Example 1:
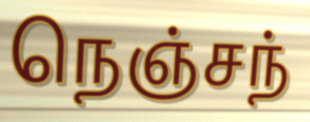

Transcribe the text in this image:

நெஞ்சந்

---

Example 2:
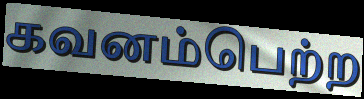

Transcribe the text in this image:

கவனம்பெற்ற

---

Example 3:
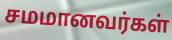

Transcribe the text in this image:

சமமானவர்கள்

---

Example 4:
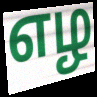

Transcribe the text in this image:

எழ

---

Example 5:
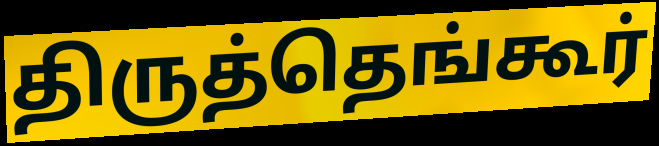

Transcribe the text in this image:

திருத்தெங்கூர்